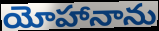
యోహానాను